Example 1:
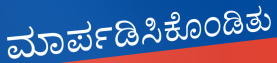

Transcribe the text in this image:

ಮಾರ್ಪಡಿಸಿಕೊಂಡಿತು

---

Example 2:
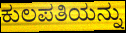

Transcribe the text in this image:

ಕುಲಪತಿಯನ್ನು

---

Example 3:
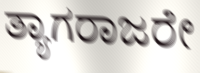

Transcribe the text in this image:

ತ್ಯಾಗರಾಜರೇ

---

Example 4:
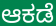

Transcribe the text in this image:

ಆಕಡೆ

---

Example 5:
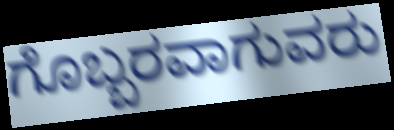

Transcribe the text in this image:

ಗೊಬ್ಬರವಾಗುವರು